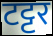
टट्टर